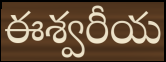
ఈశ్వరీయ